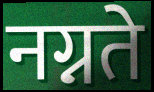
नग्नते